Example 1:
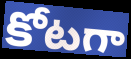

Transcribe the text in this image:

కోటగా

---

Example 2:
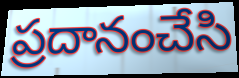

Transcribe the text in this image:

ప్రదానంచేసి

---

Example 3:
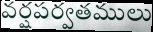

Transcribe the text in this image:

వర్షపర్వతములు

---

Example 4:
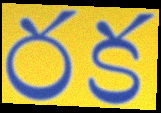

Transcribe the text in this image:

రక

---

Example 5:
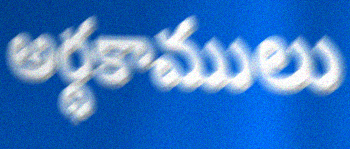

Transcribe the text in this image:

అర్థకాములు